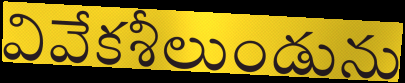
వివేకశీలుండును